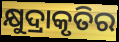
କ୍ଷୁଦ୍ରାକୃତିର